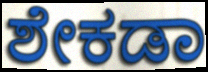
ಶೇಕಡಾ